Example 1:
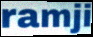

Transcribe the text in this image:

ramji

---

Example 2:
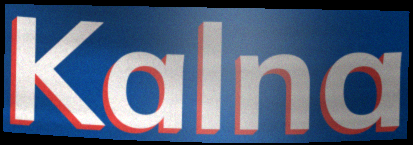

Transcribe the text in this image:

Kalna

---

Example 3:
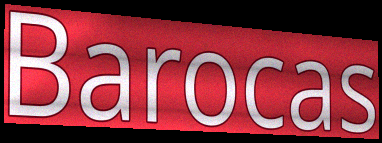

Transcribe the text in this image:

Barocas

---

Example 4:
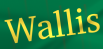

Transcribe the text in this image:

Wallis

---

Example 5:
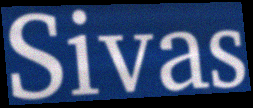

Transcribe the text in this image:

Sivas